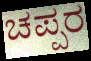
ಚಪ್ಪರ